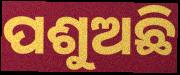
ପଶୁଅଛି